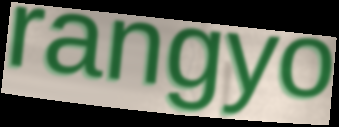
rangyo